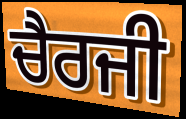
ਚੈਰਜੀ